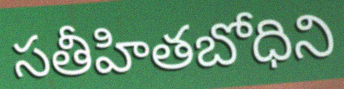
సతీహితబోధిని